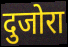
दुजोरा